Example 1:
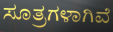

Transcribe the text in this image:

ಸೂತ್ರಗಳಾಗಿವೆ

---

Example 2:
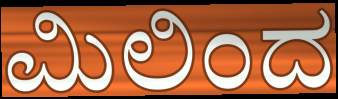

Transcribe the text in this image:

ಮಿಲಿಂದ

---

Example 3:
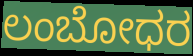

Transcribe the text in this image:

ಲಂಬೋಧರ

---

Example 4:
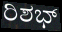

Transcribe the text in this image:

ರಿಶಭ್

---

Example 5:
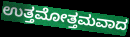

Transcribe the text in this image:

ಉತ್ತಮೋತ್ತಮವಾದ